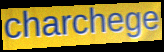
charchege